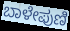
ಬಾಳೇಪುಣಿ